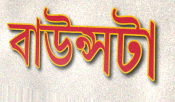
বাউন্সটা